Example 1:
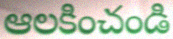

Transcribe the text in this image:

ఆలకించండి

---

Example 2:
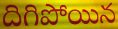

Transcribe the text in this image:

దిగిపోయిన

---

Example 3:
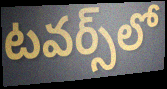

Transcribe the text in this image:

టవర్స్‌లో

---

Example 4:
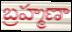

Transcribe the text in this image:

బ్రహ్మణా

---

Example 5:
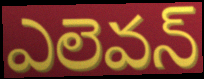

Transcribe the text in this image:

ఎలెవన్